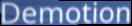
Demotion